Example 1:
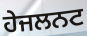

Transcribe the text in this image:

ਹੇਜਲਨਟ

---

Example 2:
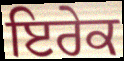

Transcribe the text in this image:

ਇਰੇਕ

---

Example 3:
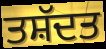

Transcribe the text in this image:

ਤਸ਼ੱਦਤ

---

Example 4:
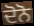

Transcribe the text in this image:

ਦੋਨੋ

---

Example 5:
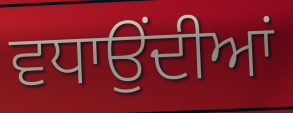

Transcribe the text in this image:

ਵਧਾਉਂਦੀਆਂ